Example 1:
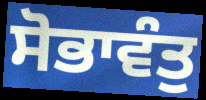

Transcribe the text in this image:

ਸੋਭਾਵੰਤੁ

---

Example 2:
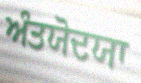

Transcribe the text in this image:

ਅੰਤਯੋਦਯਾ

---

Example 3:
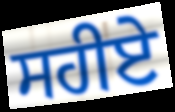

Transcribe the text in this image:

ਸਹੀਏ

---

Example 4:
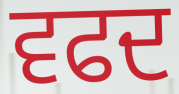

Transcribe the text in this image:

ਵਫਦ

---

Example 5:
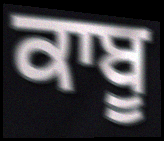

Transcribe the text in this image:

ਕਾਬੂ